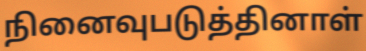
நினைவுபடுத்தினாள்